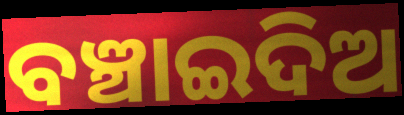
ବଞ୍ଚାଇଦିଅ